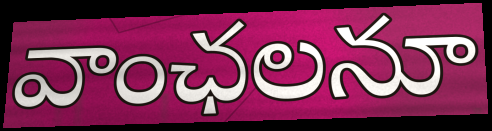
వాంఛలనూ